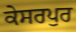
ਕੇਸਰਪੁਰ